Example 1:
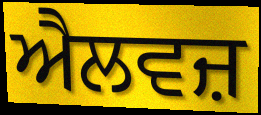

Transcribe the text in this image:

ਐਲਵਜ਼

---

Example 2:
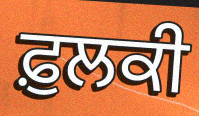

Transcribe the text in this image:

ਫ਼ੁਲਕੀ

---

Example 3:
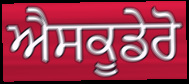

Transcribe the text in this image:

ਐਸਕੂਡੇਰੋ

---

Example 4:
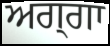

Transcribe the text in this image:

ਅਗ੍ਗਾ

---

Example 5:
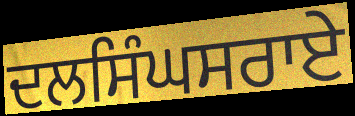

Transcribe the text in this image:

ਦਲਸਿੰਘਸਰਾਏ